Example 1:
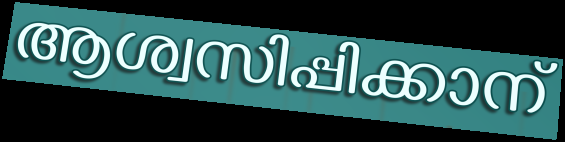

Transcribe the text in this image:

ആശ്വസിപ്പിക്കാന്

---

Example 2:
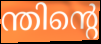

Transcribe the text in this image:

ന്തിന്റെ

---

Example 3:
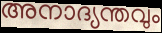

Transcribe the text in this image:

അനാദ്യന്തവും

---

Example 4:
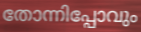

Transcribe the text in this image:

തോന്നിപ്പോവും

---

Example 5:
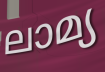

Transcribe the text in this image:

ലാമ്യ